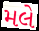
મલે